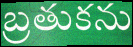
బ్రతుకను